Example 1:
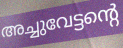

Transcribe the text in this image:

അച്ചുവേട്ടന്റെ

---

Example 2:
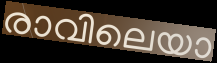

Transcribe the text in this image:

രാവിലെയാ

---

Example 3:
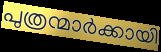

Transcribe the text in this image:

പുത്രന്മാർക്കായി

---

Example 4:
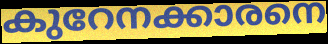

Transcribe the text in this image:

കുറേനക്കാരനെ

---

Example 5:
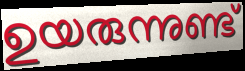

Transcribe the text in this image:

ഉയരുന്നുണ്ട്